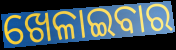
ଖେଳାଇବାର